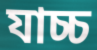
যাচ্চ